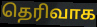
தெரிவாக